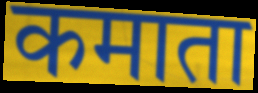
कमाता